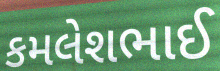
કમલેશભાઈ